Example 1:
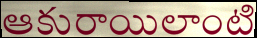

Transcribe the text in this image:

ఆకురాయిలాంటి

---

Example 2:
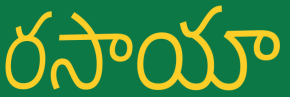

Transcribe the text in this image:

రసాయా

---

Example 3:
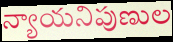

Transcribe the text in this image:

న్యాయనిపుణుల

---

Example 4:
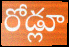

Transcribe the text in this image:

రోడ్లూ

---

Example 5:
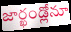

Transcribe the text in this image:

జార్ఖండ్లోనూ